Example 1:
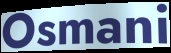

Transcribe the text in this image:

Osmani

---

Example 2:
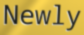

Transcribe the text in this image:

Newly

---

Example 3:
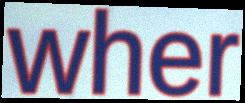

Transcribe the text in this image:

wher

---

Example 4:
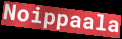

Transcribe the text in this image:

Noippaala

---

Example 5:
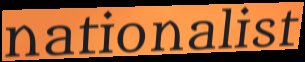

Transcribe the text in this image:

nationalist